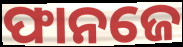
ଫାନଜେ